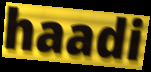
haadi